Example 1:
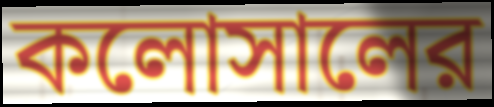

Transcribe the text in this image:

কলোসালের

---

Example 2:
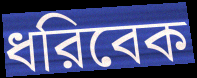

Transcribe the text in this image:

ধরিবেক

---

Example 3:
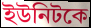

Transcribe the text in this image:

ইউনিটকে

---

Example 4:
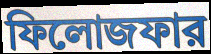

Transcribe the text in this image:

ফিলোজফার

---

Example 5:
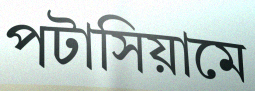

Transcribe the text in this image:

পটাসিয়ামে